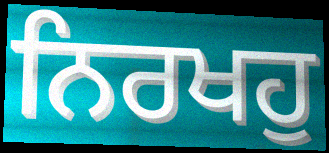
ਨਿਰਖਹੁ